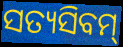
ସତ୍ୟସିବମ୍